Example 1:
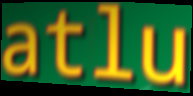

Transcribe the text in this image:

atlu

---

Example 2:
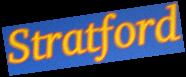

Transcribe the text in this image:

Stratford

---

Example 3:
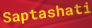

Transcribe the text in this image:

Saptashati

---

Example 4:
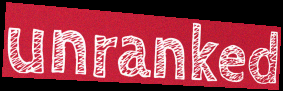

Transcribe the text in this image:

unranked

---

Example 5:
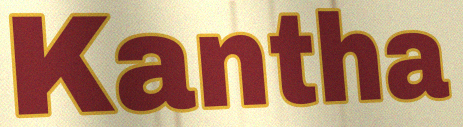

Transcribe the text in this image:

Kantha